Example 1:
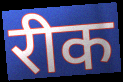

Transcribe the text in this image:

रीक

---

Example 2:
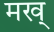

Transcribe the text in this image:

मख्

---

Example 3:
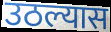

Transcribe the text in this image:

उठल्यास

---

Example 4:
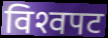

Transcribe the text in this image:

विश्वपट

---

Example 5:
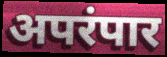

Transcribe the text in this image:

अपरंपार